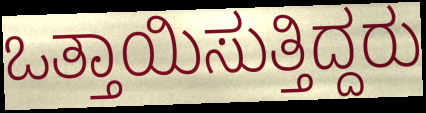
ಒತ್ತಾಯಿಸುತ್ತಿದ್ದರು